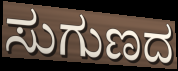
ಸುಗುಣದ